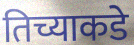
तिच्याकडे